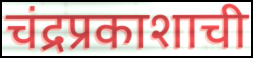
चंद्रप्रकाशाची